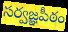
సర్వజ్ఞపీఠం